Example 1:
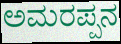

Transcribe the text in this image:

ಅಮರಪ್ಪನ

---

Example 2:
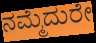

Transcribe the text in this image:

ನಮ್ಮೆದುರೇ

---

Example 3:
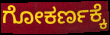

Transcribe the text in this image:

ಗೋಕರ್ಣಕ್ಕೆ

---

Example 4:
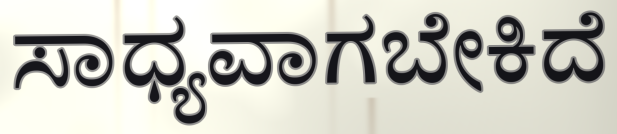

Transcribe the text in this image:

ಸಾಧ್ಯವಾಗಬೇಕಿದೆ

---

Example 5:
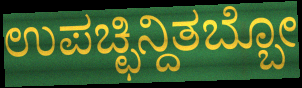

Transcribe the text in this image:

ಉಪಚ್ಛಿನ್ದಿತಬ್ಬೋ